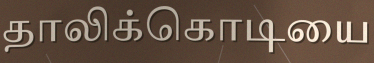
தாலிக்கொடியை